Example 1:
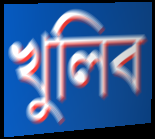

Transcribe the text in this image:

খুলিব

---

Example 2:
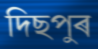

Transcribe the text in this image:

দিছপুৰ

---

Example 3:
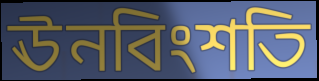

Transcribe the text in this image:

ঊনবিংশতি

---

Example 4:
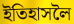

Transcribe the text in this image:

ইতিহাসলৈ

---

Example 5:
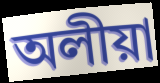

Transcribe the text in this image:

অলীয়া